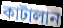
কাটালান